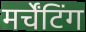
मर्चेंटिंग